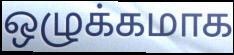
ஒழுக்கமாக